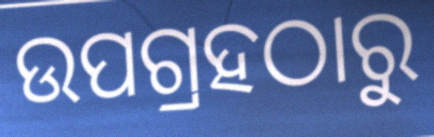
ଉପଗ୍ରହଠାରୁ